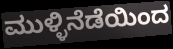
ಮುಳ್ಳಿನೆಡೆಯಿಂದ